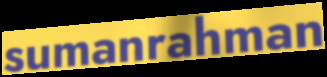
sumanrahman